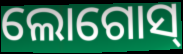
ଲୋଗୋସ୍